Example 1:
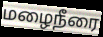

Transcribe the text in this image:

மழைநீரை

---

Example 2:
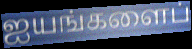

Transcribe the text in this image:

ஐயங்களைப்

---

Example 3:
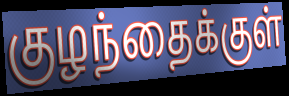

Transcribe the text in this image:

குழந்தைக்குள்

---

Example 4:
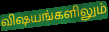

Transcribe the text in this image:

விஷயங்களிலும்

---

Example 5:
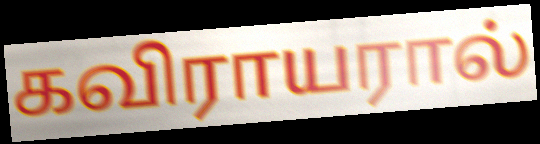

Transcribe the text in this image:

கவிராயரால்